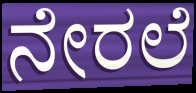
ನೇರಲೆ